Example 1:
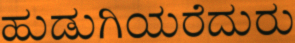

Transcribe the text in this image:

ಹುಡುಗಿಯರೆದುರು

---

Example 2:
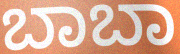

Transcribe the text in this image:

ಬಾಬಾ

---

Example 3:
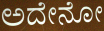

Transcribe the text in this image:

ಅದೇನೋ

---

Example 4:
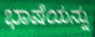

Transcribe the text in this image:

ಭಾಷೆಯನ್ನು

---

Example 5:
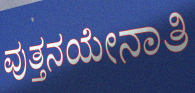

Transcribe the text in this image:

ವುತ್ತನಯೇನಾತಿ